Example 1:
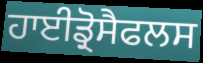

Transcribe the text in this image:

ਹਾਈਡ੍ਰੋਸੈਫਲਸ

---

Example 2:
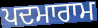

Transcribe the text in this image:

ਪਦਮਾਰਾਮ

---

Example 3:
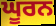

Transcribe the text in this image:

ਘੂਰਨ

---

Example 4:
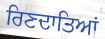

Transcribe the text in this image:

ਰਿਣਦਾਤਿਆਂ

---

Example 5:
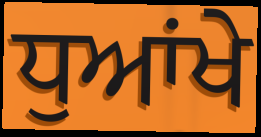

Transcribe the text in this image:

ਧੁਆਂਖੇ